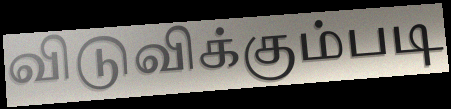
விடுவிக்கும்படி